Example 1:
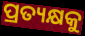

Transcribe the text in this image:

ପ୍ରତ୍ୟକ୍ଷକୁ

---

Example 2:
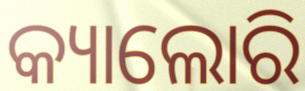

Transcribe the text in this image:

କ୍ୟାଲୋରି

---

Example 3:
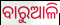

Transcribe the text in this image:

ବାରୁଆଳି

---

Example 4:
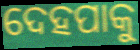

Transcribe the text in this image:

ଦେହପାକୁ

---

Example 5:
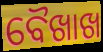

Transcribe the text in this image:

ବୈଖାଖ